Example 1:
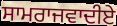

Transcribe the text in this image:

ਸਾਮਰਾਜਵਾਦੀਏ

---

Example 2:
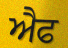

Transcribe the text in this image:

ਐਫ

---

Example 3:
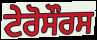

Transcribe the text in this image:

ਟੇਰੋਸੌਰਸ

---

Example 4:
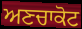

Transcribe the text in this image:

ਅਣਚਾਕੋਟ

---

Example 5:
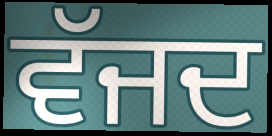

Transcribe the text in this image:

ਵੱਜਦ